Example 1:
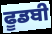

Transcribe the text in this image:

ਫੂਡਬੀ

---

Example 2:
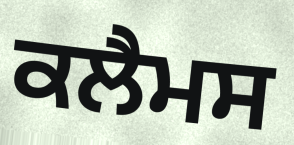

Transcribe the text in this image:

ਕਲੈਮਸ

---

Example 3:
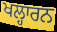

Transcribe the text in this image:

ਖਲ੍ਹਾਰਨ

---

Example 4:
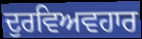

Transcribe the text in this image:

ਦੁਰਵਿਅਵਹਾਰ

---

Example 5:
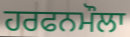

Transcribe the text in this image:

ਹਰਫਨਮੌਲਾ